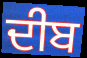
ਦੀਬ